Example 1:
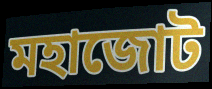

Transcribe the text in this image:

মহাজোট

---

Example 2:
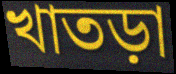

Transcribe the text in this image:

খাতড়া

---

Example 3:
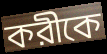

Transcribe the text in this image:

করীকে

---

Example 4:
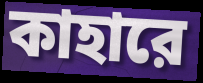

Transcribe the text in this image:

কাহারে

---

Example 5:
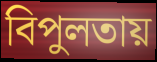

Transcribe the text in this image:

বিপুলতায়